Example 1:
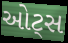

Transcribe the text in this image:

ઓટ્સ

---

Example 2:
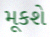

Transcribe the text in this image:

મૂકશે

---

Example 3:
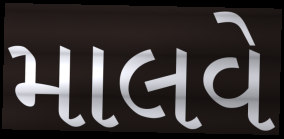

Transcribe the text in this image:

માલવે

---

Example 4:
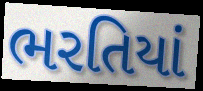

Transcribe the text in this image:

ભરતિયાં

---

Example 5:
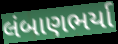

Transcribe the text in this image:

લંબાણભર્યા